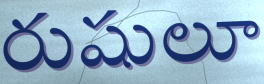
రుషులూ